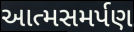
આત્મસમર્પણ